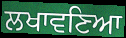
ਲਖਾਵਣਿਆ